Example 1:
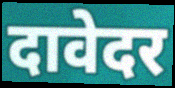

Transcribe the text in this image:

दावेदर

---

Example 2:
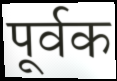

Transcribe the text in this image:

पूर्वक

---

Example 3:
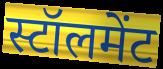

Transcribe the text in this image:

स्टॉलमेंट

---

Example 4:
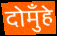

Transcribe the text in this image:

दोमुँहे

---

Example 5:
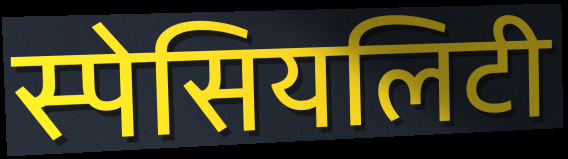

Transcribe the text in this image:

स्पेसियलिटी